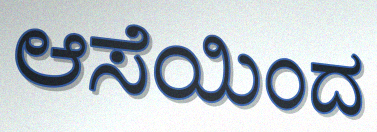
ಆಸೆಯಿಂದ